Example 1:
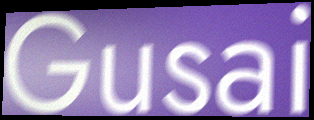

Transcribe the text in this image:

Gusai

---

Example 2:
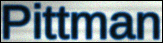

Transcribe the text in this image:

Pittman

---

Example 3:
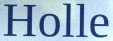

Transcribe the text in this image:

Holle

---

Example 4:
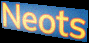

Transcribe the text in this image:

Neots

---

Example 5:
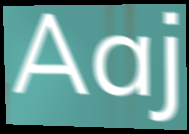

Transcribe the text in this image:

Aaj